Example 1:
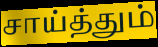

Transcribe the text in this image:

சாய்த்தும்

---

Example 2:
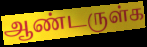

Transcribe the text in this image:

ஆண்டருள்க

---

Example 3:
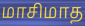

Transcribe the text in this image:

மாசிமாத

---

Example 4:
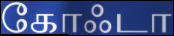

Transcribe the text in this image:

கோஃடா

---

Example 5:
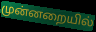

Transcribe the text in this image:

முன்னறையில்